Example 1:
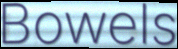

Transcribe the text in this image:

Bowels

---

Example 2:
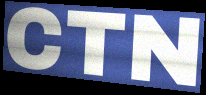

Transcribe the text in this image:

CTN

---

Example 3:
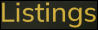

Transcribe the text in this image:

Listings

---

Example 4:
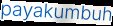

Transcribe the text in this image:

payakumbuh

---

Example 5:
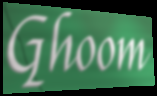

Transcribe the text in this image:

Ghoom